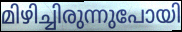
മിഴിച്ചിരുന്നുപോയി